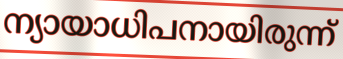
ന്യായാധിപനായിരുന്ന്